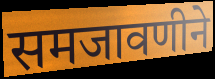
समजावणीने